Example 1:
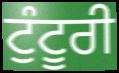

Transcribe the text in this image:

ਟੁੰਟੂਰੀ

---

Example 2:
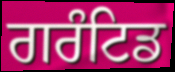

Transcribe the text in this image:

ਗਰੰਟਿਡ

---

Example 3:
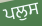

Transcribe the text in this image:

ਪਲੁਸ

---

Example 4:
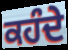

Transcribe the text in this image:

ਕਹੰਦੇ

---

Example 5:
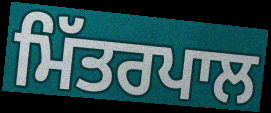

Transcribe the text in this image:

ਮਿੱਤਰਪਾਲ